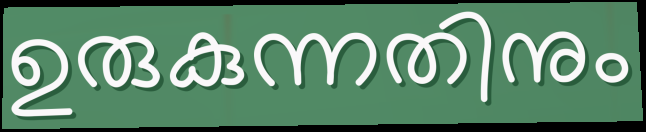
ഉരുകുന്നതിനും